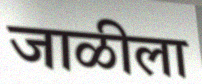
जाळीला